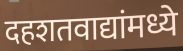
दहशतवाद्यांमध्ये